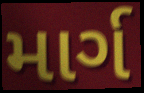
માર્ગ